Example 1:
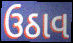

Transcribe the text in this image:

ઉઠાવ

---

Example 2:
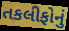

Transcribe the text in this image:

તકલીફોનું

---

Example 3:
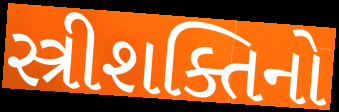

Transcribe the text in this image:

સ્ત્રીશક્તિનો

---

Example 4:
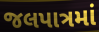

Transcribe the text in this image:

જલપાત્રમાં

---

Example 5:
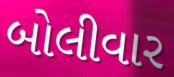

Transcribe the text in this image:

બોલીવાર